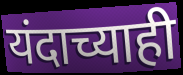
यंदाच्याही